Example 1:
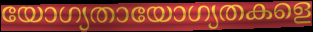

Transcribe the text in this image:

യോഗ്യതായോഗ്യതകളെ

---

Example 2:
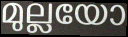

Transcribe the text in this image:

മുല്ലയോ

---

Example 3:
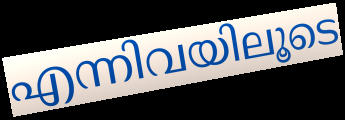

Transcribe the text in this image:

എന്നിവയിലൂടെ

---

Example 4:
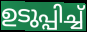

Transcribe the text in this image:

ഉടുപ്പിച്ച്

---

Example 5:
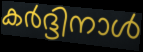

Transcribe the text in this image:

കർദ്ദിനാൾ